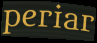
periar